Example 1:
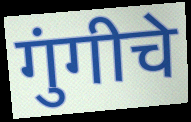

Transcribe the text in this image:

गुंगीचे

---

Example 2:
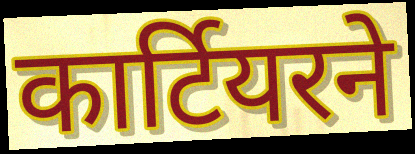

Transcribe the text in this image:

कार्टियरने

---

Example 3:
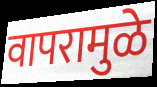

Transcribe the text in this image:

वापरामुळे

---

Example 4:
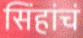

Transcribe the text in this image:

सिंहांचं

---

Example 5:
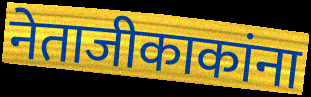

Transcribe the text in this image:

नेताजीकाकांना